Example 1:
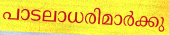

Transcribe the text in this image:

പാടലാധരിമാർക്കു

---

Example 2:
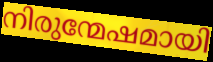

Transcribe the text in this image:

നിരുന്മേഷമായി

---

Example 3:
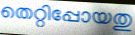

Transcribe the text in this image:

തെറ്റിപ്പോയതു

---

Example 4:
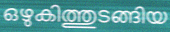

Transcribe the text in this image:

ഒഴുകിത്തുടങ്ങിയ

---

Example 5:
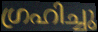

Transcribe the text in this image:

ഗ്രഹിച്ചു